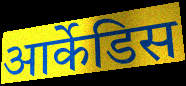
आर्केडिस